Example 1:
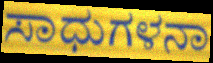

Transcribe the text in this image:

ಸಾಧುಗಳನಾ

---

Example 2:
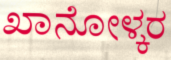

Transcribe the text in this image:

ಖಾನೋಳ್ಕರ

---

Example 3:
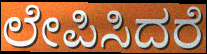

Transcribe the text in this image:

ಲೇಪಿಸಿದರೆ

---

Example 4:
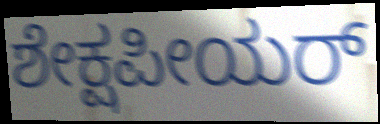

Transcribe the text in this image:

ಶೇಕ್ಷಪೀಯರ್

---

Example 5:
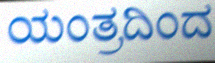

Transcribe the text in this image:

ಯಂತ್ರದಿಂದ